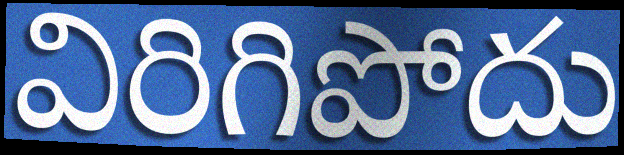
విరిగిపోదు